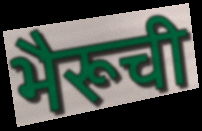
भैरूची